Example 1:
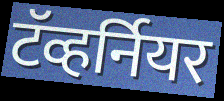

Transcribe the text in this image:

टॅव्हर्नियर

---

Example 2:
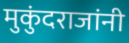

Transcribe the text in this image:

मुकुंदराजांनी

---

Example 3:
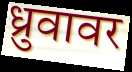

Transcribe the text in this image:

ध्रुवावर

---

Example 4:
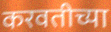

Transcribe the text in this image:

करवतीच्या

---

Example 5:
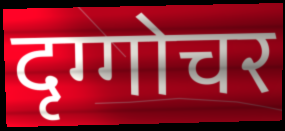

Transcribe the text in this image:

दृग्गोचर